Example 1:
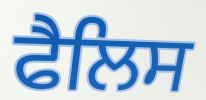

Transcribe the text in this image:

ਫੈਲਿਸ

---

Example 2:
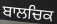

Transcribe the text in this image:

ਬਾਲਚਿਕ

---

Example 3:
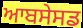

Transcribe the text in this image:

ਆਬਸੇਸਡ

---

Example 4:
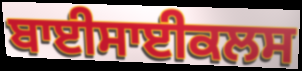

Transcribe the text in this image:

ਬਾਈਸਾਈਕਲਸ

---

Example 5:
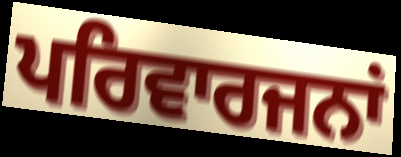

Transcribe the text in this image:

ਪਰਿਵਾਰਜਨਾਂ